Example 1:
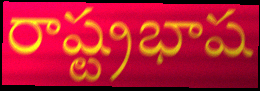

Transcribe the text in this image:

రాష్ట్రభాష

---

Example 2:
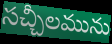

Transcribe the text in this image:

సచ్చీలమును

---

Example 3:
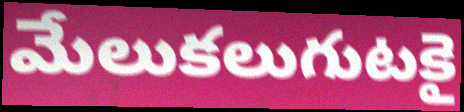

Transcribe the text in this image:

మేలుకలుగుటకై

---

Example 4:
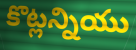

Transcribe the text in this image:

కొట్లన్నియు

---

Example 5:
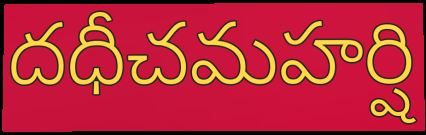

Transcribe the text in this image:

దధీచమహర్షి